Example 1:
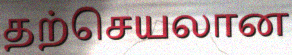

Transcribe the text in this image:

தற்செயலான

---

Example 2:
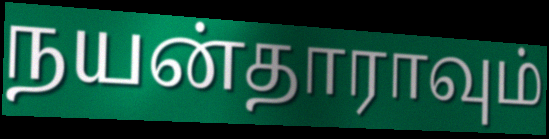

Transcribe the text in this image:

நயன்தாராவும்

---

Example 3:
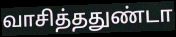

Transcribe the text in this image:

வாசித்ததுண்டா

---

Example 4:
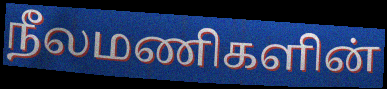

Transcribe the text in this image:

நீலமணிகளின்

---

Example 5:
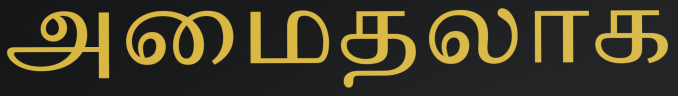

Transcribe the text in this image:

அமைதலாக